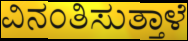
ವಿನಂತಿಸುತ್ತಾಳೆ